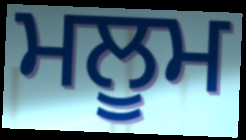
ਮਲੂਮ